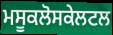
ਮਸੂਕਲੋਸਕੇਲਟਲ